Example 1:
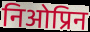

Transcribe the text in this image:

निओप्रिन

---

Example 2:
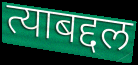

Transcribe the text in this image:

त्याबद्दल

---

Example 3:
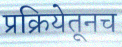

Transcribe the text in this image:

प्रक्रियेतूनच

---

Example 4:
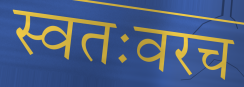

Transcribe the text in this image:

स्वतःवरच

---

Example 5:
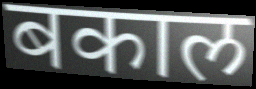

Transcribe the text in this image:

बकाल